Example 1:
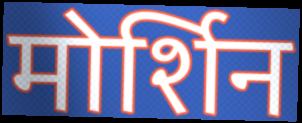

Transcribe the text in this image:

मोर्शिन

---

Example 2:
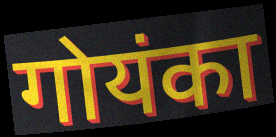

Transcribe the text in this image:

गोयंका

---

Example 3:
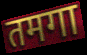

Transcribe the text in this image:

तमगा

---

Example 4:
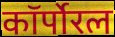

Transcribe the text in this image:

कॉर्पोरल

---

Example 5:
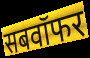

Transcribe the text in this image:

सबवॉफर